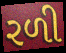
રળી